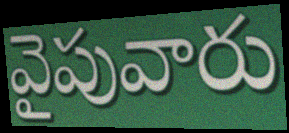
వైపువారు